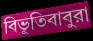
বিভূতিবাবুরা